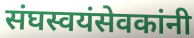
संघस्वयंसेवकांनी